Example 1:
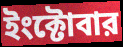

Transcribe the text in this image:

ইংক্টোবার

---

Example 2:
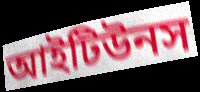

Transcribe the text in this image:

আইটিউনস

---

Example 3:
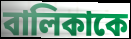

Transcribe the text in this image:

বালিকাকে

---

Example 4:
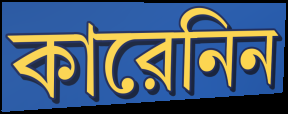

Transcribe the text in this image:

কারেনিন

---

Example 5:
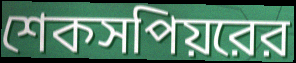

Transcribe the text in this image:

শেকসপিয়রের